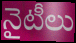
నైటీలు